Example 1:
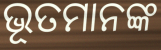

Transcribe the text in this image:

ଭୂତମାନଙ୍କ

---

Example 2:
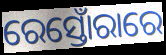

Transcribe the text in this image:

ରେସ୍ତୋଁରାରେ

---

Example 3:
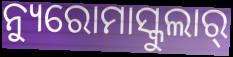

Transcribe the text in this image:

ନ୍ୟୁରୋମାସ୍କୁଲାର୍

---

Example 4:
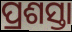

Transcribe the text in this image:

ପ୍ରଶସ୍ତା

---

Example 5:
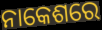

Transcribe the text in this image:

ନାକେଶରେ